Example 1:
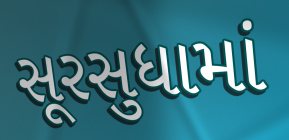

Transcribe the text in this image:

સૂરસુધામાં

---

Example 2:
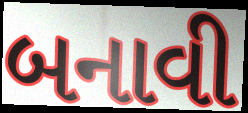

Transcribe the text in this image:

બનાવી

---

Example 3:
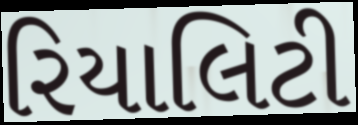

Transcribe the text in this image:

રિયાલિટી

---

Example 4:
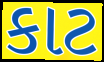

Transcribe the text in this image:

કાટ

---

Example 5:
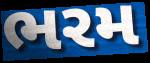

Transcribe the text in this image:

ભરમ